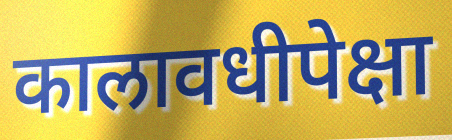
कालावधीपेक्षा